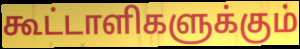
கூட்டாளிகளுக்கும்